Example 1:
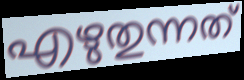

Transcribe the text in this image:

എഴുതുന്നത്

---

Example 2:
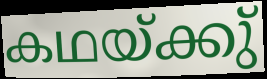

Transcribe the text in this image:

കഥയ്ക്കു്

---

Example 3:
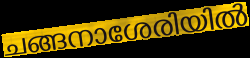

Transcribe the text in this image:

ചങ്ങനാശേരിയിൽ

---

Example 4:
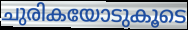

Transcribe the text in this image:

ചുരികയോടുകൂടെ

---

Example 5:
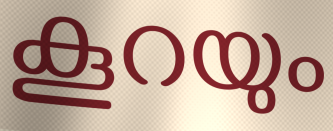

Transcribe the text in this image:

കൂറയും